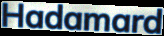
Hadamard